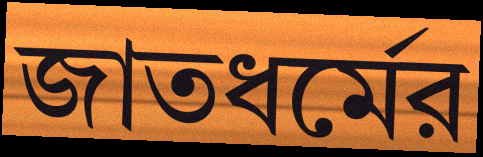
জাতধর্মের